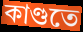
কাণ্ডতে